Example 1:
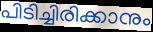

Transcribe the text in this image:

പിടിച്ചിരിക്കാനും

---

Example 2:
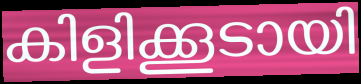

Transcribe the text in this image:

കിളിക്കൂടായി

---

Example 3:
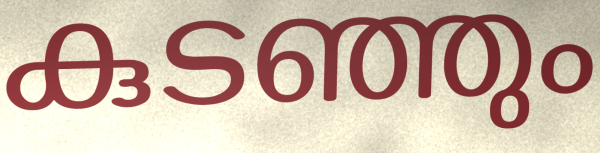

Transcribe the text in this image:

കുടഞ്ഞും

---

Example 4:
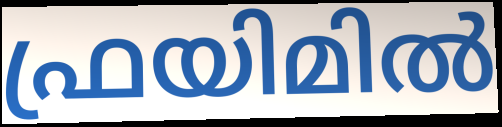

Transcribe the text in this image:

ഫ്രയിമിൽ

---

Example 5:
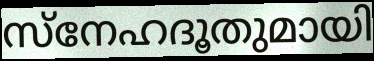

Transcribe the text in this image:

സ്നേഹദൂതുമായി